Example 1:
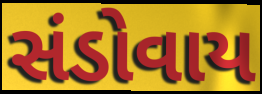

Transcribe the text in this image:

સંડોવાય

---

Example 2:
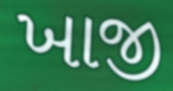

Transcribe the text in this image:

ખાજી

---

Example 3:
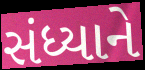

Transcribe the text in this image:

સંધ્યાને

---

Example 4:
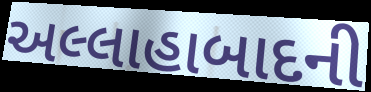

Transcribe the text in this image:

અલ્લાહાબાદની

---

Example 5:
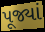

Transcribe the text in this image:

પૂજ્યાં